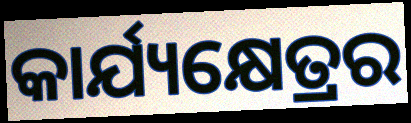
କାର୍ଯ୍ୟକ୍ଷେତ୍ରର